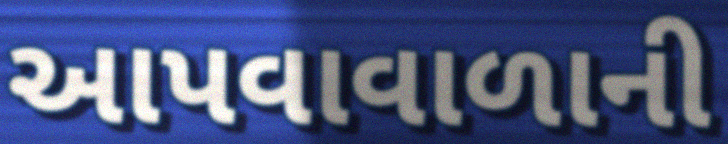
આપવાવાળાની